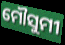
ମୌସୁମୀ